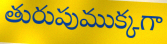
తురుపుముక్కగా